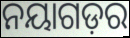
ନୟାଗଡ଼ର